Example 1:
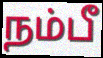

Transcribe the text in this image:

நம்பீ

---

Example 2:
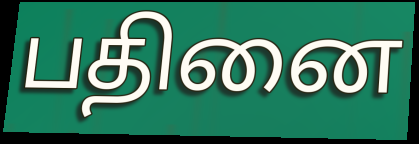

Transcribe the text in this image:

பதினை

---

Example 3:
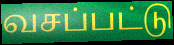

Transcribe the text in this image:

வசப்பட்டு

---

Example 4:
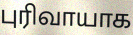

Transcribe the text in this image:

புரிவாயாக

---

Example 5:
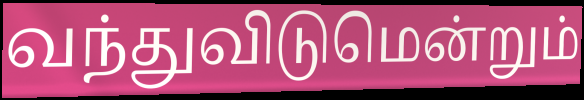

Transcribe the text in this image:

வந்துவிடுமென்றும்